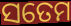
ସତେମ